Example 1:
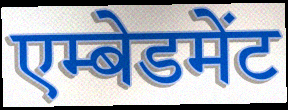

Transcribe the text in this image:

एम्बेडमेंट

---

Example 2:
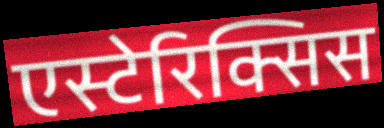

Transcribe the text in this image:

एस्टेरिक्सिस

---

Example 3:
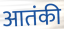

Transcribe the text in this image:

आतंकी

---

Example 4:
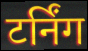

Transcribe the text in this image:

टर्निंग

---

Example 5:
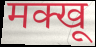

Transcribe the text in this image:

मक्खू